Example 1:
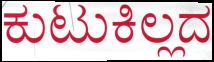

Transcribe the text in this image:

ಕುಟುಕಿಲ್ಲದ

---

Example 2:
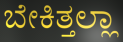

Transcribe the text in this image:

ಬೇಕಿತ್ತಲ್ಲಾ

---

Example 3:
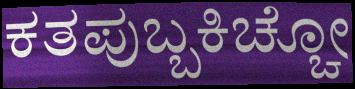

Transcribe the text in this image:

ಕತಪುಬ್ಬಕಿಚ್ಚೋ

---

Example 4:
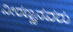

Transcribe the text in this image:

ವೀರಣ್ಣನವರು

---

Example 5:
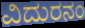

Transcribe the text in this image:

ವಿದುರನಂ